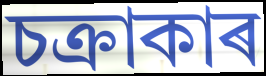
চক্ৰাকাৰ